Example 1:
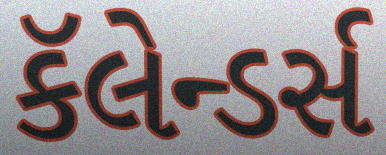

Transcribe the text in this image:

કૅલેન્ડર્સ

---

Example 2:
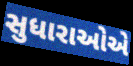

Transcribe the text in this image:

સુધારાઓએ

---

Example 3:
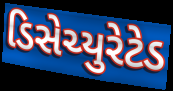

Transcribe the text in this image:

ડિસેચ્યુરેટેડ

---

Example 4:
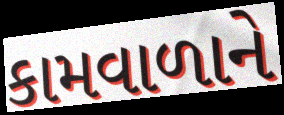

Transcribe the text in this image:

કામવાળાને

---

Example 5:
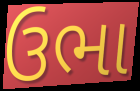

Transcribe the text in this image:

ઉભા